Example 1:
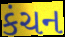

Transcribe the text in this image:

કંચન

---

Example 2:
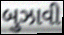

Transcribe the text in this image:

બુઝાવી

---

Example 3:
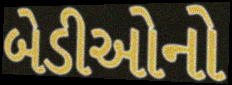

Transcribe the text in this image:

બેડીઓનો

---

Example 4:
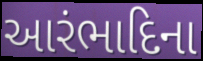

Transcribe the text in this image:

આરંભાદિના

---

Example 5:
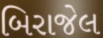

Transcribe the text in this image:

બિરાજેલ